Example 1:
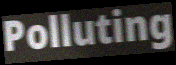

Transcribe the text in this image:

Polluting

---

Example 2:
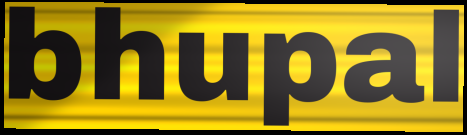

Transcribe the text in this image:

bhupal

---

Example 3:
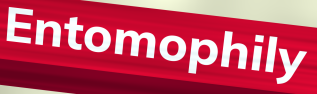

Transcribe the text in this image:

Entomophily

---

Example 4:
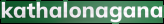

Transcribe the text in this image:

kathalonagana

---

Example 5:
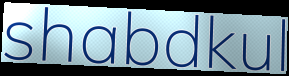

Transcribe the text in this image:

shabdkul